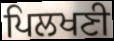
ਪਿਲਖਣੀ